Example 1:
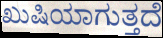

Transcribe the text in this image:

ಖುಷಿಯಾಗುತ್ತದೆ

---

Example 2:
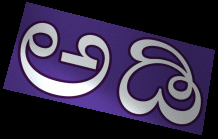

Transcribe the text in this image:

ಅಡಿ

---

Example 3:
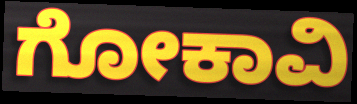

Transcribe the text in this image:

ಗೋಕಾವಿ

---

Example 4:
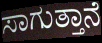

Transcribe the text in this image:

ಸಾಗುತ್ತಾನೆ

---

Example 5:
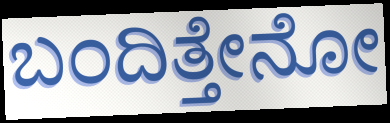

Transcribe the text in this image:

ಬಂದಿತ್ತೇನೋ